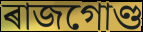
ৰাজগোণ্ড